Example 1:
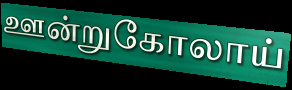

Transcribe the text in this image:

ஊன்றுகோலாய்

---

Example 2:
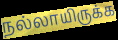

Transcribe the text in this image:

நல்லாயிருக்க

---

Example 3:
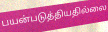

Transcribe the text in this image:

பயன்படுத்தியதில்லை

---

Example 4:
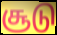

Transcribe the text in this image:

சூடு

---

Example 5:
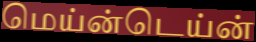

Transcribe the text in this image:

மெய்ன்டெய்ன்